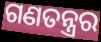
ଗଣତନ୍ତ୍ରର